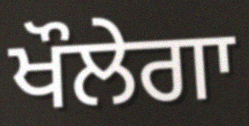
ਖੌਲੇਗਾ